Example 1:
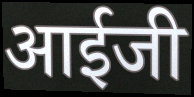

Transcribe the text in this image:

आईजी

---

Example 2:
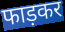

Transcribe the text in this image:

फाड़कर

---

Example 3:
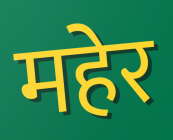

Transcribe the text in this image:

महेर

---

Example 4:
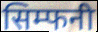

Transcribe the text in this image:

सिम्फनी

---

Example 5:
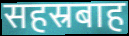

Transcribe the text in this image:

सहस्रबाह